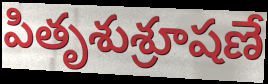
పితృశుశ్రూషణే